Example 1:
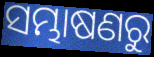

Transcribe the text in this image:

ସମ୍ଭାଷଣରୁ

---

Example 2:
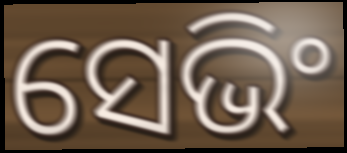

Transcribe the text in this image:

ସେଭିଂ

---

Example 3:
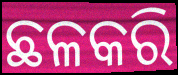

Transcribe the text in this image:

ଛଳକରି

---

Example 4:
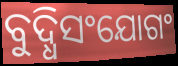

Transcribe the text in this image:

ବୁଦ୍ଧିସଂଯୋଗଂ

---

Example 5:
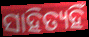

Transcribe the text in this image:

ସାହିତ୍ୟହିଁ